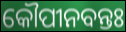
କୌପୀନବନ୍ତଃ